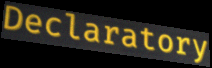
Declaratory